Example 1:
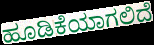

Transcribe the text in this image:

ಹೂಡಿಕೆಯಾಗಲಿದೆ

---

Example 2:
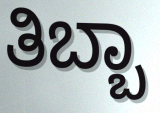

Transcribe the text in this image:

ತಿಬ್ಬಾ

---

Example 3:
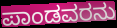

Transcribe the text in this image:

ಪಾಂಡವರನು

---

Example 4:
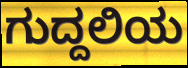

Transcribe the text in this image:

ಗುದ್ದಲಿಯ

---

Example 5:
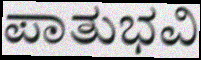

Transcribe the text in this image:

ಪಾತುಭವಿ